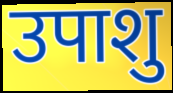
उपाशु